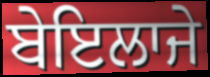
ਬੇਇਲਾਜੇ